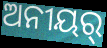
ଅନୀୟର୍